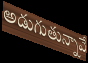
అడుగుతున్నావే